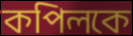
কপিলকে